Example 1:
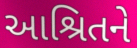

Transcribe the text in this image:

આશ્રિતને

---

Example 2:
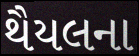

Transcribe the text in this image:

થૈયલના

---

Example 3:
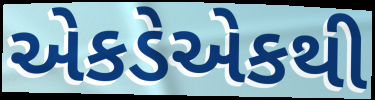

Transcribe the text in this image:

એકડેએકથી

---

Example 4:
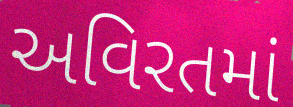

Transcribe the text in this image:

અવિરતમાં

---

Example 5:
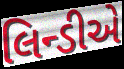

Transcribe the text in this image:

લિન્ડીએ